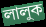
লালুক